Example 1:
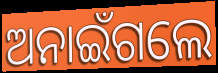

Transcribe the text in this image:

ଅନାଇଁଗଲେ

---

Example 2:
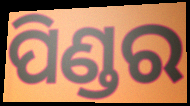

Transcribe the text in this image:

ପିଣ୍ଡର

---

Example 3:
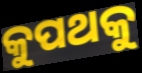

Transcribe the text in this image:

କୁପଥକୁ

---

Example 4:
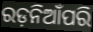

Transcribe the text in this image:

ରଡ଼ନିଆଁପରି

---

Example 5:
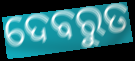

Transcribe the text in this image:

ଦେବରୁତ